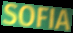
SOFIA